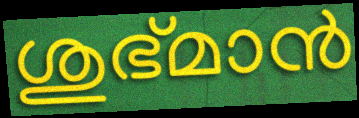
ശുഭ്മാൻ